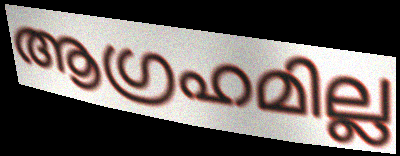
ആഗ്രഹമില്ല